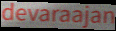
devaraajan